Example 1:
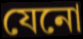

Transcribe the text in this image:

যেনো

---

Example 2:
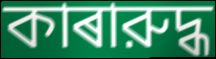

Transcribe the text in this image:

কাৰাৰুদ্ধ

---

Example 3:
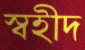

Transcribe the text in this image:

স্বহীদ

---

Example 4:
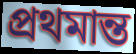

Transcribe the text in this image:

প্ৰথমান্ত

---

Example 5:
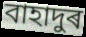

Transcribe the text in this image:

বাহাদুৰ